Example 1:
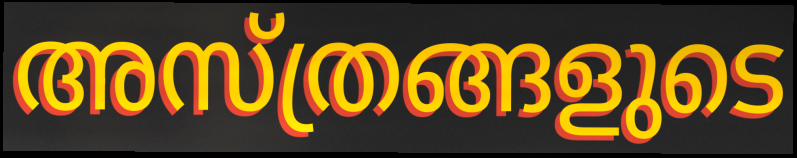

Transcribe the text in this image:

അസ്ത്രങ്ങളുടെ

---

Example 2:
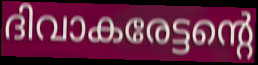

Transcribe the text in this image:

ദിവാകരേട്ടന്റെ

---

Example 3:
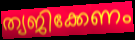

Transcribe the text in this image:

ത്യജിക്കേണം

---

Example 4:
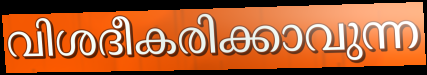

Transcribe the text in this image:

വിശദീകരിക്കാവുന്ന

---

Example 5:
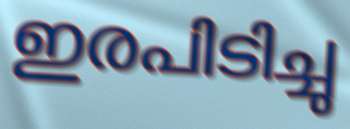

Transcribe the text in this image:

ഇരപിടിച്ചു